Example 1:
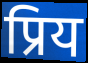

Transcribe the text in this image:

प्रिय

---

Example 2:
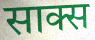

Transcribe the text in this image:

साक्स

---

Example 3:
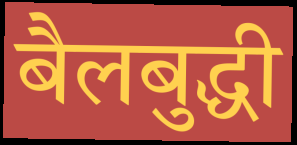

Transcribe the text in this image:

बैलबुद्धी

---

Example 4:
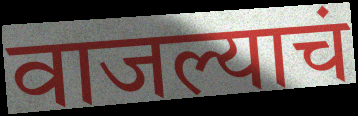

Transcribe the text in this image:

वाजल्याचं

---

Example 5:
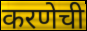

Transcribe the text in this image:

करणेची